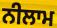
ਨੀਲਾਮ